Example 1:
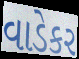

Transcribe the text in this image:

વાડેકર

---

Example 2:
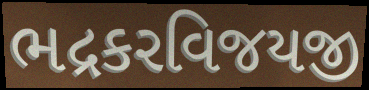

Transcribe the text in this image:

ભદ્રકરવિજયજી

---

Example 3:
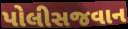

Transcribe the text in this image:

પોલીસજવાન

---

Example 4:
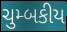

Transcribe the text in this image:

ચુમ્બકીય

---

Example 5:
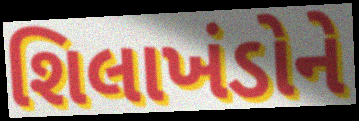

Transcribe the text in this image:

શિલાખંડોને